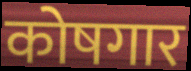
कोषगार